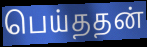
பெய்ததன்